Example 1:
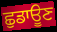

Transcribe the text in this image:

ਛੁਡਾਊਣ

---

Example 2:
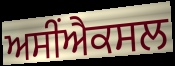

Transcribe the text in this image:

ਅਸੀਂਐਕਸਲ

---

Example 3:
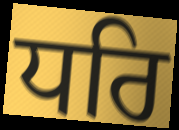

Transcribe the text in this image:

ਧਰਿ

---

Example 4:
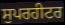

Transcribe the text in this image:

ਸੁਪਰਹੀਟਰ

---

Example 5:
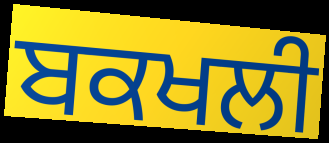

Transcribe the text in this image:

ਬਕਖਲੀ